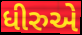
ધીરુએ